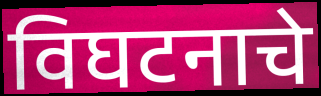
विघटनाचे